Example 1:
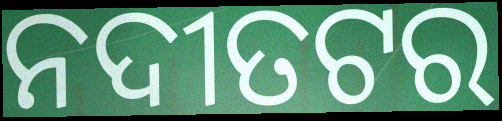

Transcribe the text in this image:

ନଦୀତଟର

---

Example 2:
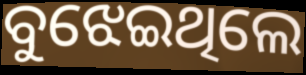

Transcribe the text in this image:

ବୁଝେଇଥିଲେ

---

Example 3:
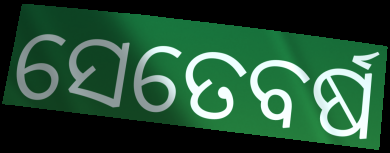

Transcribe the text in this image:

ସେତେବର୍ଷ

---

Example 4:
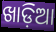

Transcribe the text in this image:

ଖାଡ଼ିଆ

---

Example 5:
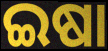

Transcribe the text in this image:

ଇଷା